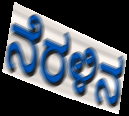
ನೆರಳಿನ